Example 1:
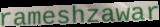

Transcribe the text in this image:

rameshzawar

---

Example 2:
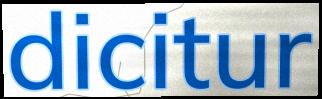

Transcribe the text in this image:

dicitur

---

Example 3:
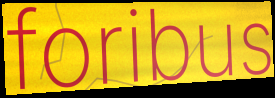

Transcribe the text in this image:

foribus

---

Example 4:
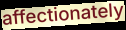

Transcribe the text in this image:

affectionately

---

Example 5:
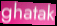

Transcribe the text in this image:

ghatak